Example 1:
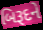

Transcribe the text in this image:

બિરૂદને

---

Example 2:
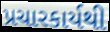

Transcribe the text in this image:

પ્રચારકાર્યથી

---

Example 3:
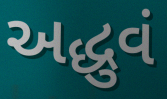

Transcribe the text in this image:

અદ્ધુવં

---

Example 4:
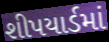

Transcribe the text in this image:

શીપયાર્ડમાં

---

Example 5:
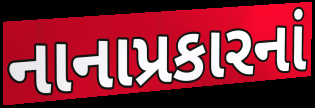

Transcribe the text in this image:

નાનાપ્રકારનાં